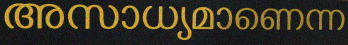
അസാധ്യമാണെന്ന